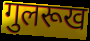
गुलरूख